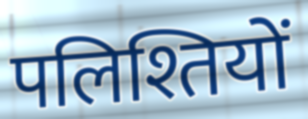
पलिश्तियों